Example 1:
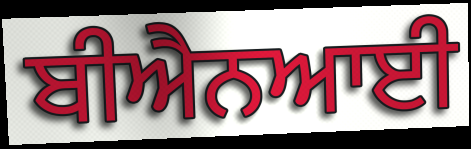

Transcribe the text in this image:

ਬੀਐਨਆਈ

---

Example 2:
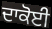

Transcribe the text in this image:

ਦਾਕੋਈ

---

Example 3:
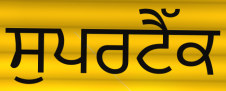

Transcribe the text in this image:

ਸੁਪਰਟੈੱਕ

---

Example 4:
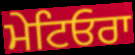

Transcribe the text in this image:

ਮੇਟਿਓਰਾ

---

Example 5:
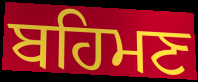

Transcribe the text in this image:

ਬਹਿਮਣ